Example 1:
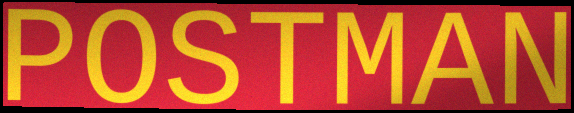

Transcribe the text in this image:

POSTMAN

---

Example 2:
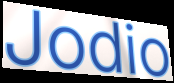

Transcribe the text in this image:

Jodio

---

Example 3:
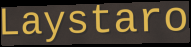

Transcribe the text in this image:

Laystaro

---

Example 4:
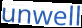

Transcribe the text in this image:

unwell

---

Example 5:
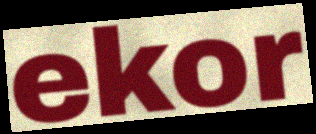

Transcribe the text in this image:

ekor